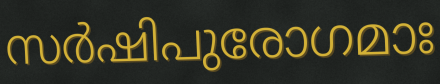
സർഷിപുരോഗമാഃ